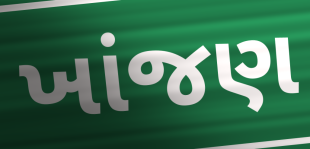
ખાંજણ